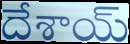
దేశాయ్